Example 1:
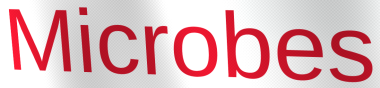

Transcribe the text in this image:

Microbes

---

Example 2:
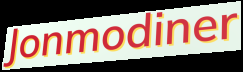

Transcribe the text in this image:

Jonmodiner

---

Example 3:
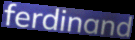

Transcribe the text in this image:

ferdinand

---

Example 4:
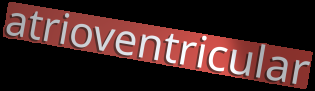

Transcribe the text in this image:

atrioventricular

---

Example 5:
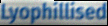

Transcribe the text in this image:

Lyophillised